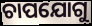
ଚାପଯୋଗୁ